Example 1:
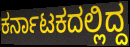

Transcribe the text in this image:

ಕರ್ನಾಟಕದಲ್ಲಿದ್ದ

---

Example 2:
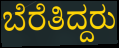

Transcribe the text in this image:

ಬೆರೆತಿದ್ದರು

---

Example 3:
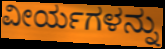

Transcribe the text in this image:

ವೀರ್ಯಗಳನ್ನು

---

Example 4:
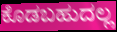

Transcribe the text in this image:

ಕೊಡಬಹುದಲ್ಲ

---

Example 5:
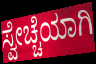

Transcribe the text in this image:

ಸ್ವೇಚ್ಚೆಯಾಗಿ